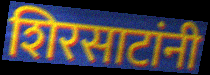
शिरसाटांनी